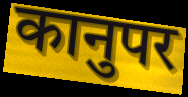
कानुपर